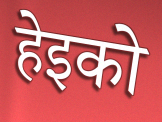
हेइको